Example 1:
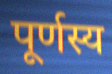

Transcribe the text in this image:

पूर्णस्य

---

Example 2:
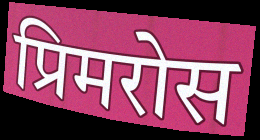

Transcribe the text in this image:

प्रिमरोस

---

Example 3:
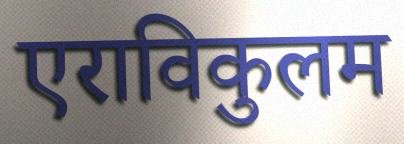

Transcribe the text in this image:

एराविकुलम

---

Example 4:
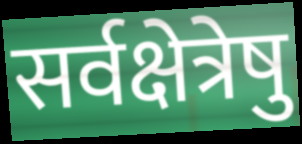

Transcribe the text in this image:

सर्वक्षेत्रेषु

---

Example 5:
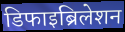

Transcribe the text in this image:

डिफाइब्रिलेशन